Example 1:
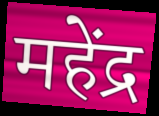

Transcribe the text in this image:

महेंद्र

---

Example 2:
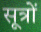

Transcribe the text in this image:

सूत्रों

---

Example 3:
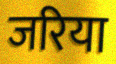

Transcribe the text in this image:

जरिया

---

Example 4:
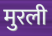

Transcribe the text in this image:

मुरली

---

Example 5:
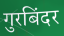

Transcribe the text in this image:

गुरबिंदर